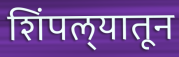
शिंपल्यातून